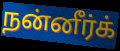
நன்னீர்க்